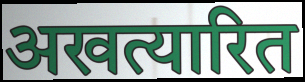
अखत्यारित